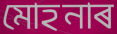
মোহনাৰ